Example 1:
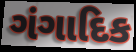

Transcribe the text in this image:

ગંગાદિક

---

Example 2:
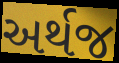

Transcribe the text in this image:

અર્થજ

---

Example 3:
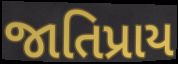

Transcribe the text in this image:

જાતિપ્રાય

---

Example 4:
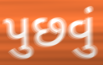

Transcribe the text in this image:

પુછવું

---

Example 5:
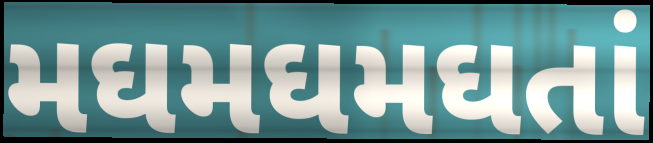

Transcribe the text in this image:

મઘમઘમઘતાં